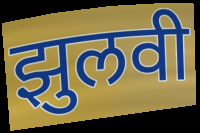
झुलवी